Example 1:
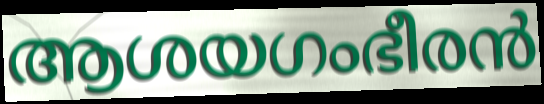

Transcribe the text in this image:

ആശയഗംഭീരൻ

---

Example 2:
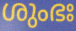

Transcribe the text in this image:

ശുംഭഃ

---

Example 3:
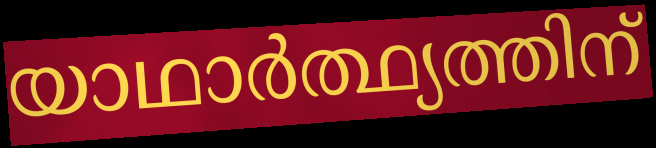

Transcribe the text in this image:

യാഥാർത്ഥ്യത്തിന്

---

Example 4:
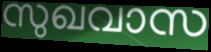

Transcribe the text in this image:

സുഖവാസ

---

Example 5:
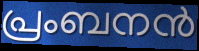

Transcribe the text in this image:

പ്രംബനൻ